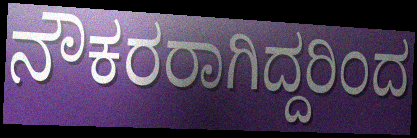
ನೌಕರರಾಗಿದ್ದರಿಂದ